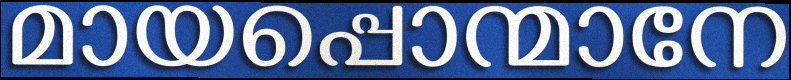
മായപ്പൊന്മാനേ